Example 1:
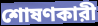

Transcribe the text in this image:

শোষণকারী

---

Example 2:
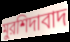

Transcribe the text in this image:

মুরশিদাবাদ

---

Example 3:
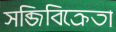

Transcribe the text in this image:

সব্জিবিক্রেতা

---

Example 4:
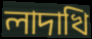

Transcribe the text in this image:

লাদাখি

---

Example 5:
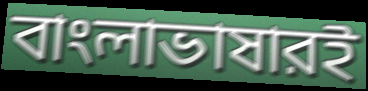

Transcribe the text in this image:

বাংলাভাষারই